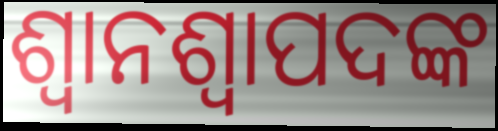
ଶ୍ୱାନଶ୍ୱାପଦଙ୍କ